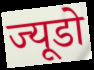
ज्यूडो